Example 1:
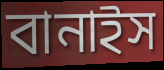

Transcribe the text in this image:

বানাইস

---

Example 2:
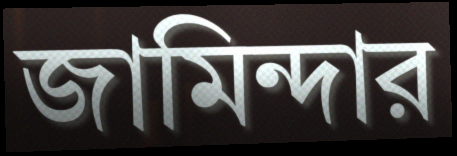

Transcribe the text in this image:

জামিন্দার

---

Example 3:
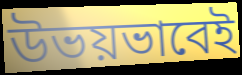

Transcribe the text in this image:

উভয়ভাবেই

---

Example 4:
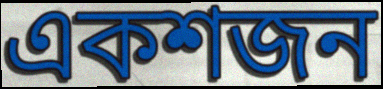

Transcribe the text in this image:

একশজন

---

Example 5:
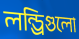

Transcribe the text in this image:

লন্ড্রিগুলো